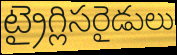
ట్రైగ్లిసరైడులు